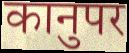
कानुपर